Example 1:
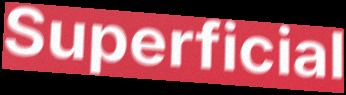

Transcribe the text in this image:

Superficial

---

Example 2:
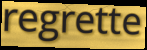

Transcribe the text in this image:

regrette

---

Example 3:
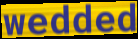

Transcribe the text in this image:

wedded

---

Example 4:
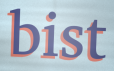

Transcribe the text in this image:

bist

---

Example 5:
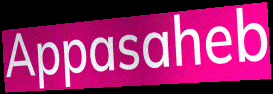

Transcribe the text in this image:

Appasaheb